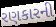
રણકારની